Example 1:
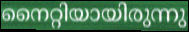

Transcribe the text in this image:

നൈറ്റിയായിരുന്നു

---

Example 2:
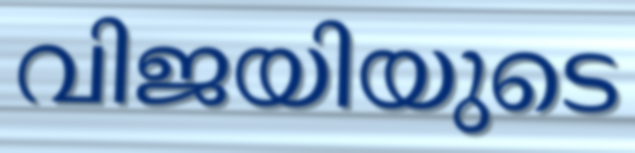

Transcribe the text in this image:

വിജയിയുടെ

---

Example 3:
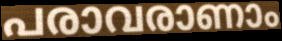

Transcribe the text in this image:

പരാവരാണാം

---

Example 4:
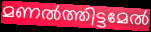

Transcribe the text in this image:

മണൽത്തിട്ടമേൽ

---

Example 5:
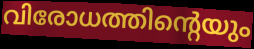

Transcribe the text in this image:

വിരോധത്തിന്റെയും